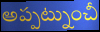
అప్పట్నుంచీ